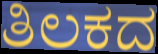
ತಿಲಕದ